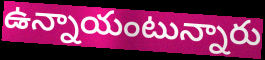
ఉన్నాయంటున్నారు